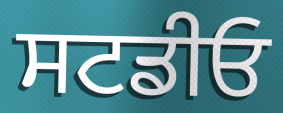
ਸਟਡੀਓ